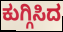
ಕುಗ್ಗಿಸಿದ